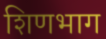
शिणभाग